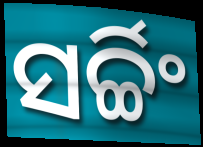
ସର୍ଚ୍ଚିଂ